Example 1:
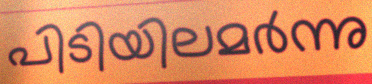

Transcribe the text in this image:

പിടിയിലമർന്നു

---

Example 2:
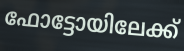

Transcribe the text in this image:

ഫോട്ടോയിലേക്ക്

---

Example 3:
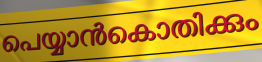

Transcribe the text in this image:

പെയ്യാൻകൊതിക്കും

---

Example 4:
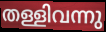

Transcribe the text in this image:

തള്ളിവന്നു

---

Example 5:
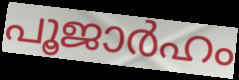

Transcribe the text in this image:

പൂജാർഹം